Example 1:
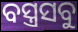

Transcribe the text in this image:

ବସ୍ତ୍ରସବୁ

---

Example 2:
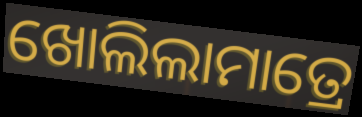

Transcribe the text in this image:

ଖୋଲିଲାମାତ୍ରେ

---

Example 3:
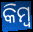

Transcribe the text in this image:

କିମ୍ବ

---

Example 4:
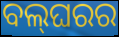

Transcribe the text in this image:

ବଲ୍‌ଘରର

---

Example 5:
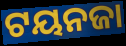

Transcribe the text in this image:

ଟୟନଜା